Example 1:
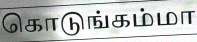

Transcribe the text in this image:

கொடுங்கம்மா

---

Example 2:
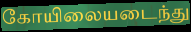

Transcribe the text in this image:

கோயிலையடைந்து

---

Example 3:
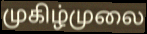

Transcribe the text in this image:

முகிழ்முலை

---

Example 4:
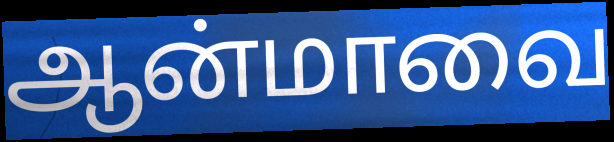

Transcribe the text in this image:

ஆன்மாவை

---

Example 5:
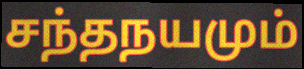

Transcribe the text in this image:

சந்தநயமும்